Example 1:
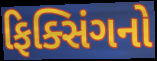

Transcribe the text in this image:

ફિક્સિંગનો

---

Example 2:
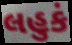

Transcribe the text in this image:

લહુકં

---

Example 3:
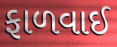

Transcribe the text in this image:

ફાળવાઈ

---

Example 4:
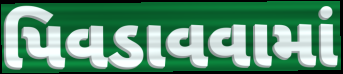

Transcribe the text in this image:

પિવડાવવામાં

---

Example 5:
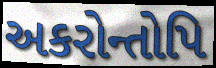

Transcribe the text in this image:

અકરોન્તોપિ